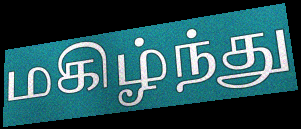
மகிழ்ந்து